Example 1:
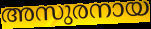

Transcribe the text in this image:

അസുരനായ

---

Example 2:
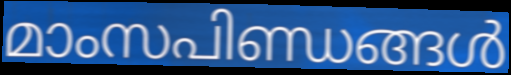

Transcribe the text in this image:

മാംസപിണ്ഡങ്ങൾ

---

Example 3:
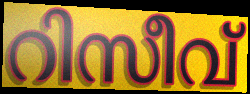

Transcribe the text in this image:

റിസീവ്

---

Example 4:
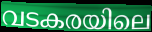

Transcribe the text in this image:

വടകരയിലെ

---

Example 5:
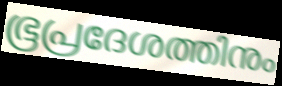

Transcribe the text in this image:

ഭൂപ്രദേശത്തിനും